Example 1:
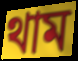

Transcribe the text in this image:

থাম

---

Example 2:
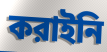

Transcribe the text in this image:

করাইনি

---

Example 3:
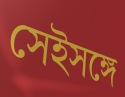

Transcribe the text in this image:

সেইসঙ্গে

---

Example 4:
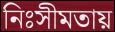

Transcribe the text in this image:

নিঃসীমতায়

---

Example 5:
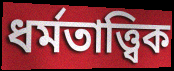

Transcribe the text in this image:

ধর্মতাত্ত্বিক